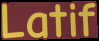
Latif